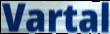
Vartal